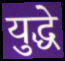
युद्धे